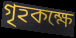
গৃহকক্ষে